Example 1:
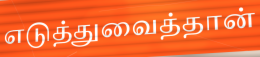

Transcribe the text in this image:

எடுத்துவைத்தான்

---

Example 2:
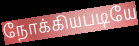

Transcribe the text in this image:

நோக்கியபடியே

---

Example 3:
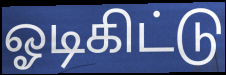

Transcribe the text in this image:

ஓடிகிட்டு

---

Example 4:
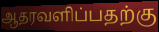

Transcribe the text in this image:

ஆதரவளிப்பதற்கு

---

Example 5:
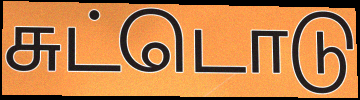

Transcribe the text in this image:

சுட்டொடு